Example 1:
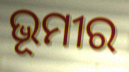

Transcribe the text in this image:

ଭୂମୀର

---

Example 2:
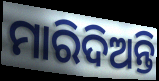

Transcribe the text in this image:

ମାରିଦିଅନ୍ତି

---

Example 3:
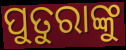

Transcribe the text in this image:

ପୁତୁରାଙ୍କୁ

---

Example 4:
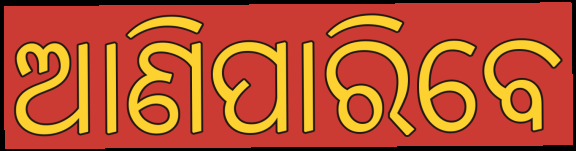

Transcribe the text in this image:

ଆଣିପାରିବେ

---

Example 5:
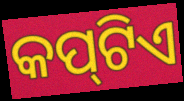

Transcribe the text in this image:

କପ୍‌ଟିଏ